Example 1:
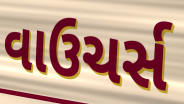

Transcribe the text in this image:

વાઉચર્સ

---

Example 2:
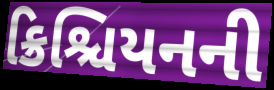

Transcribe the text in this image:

ક્રિશ્ચિયનની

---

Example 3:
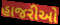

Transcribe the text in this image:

હાજરીઓ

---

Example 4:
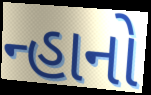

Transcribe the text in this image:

ન્હાનો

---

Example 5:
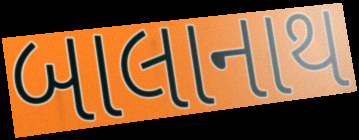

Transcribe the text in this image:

બાલાનાથ